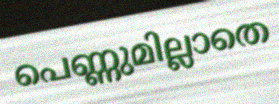
പെണ്ണുമില്ലാതെ